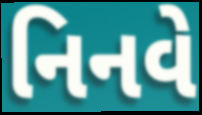
નિનવે